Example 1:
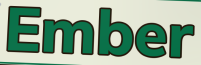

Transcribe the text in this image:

Ember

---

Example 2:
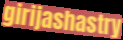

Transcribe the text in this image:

girijashastry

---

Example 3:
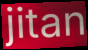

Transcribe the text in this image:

jitan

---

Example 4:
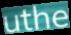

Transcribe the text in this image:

uthe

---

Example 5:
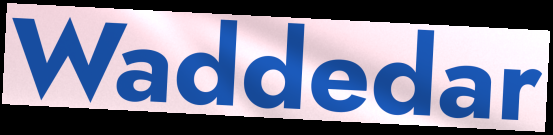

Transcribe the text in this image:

Waddedar